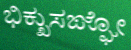
ಭಿಕ್ಖುಸಙ್ಘೋ